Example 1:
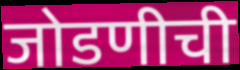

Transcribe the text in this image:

जोडणीची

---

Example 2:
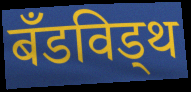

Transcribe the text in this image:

बँडविड्थ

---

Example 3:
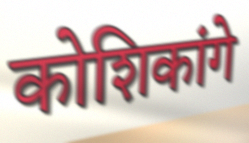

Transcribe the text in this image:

कोशिकांगे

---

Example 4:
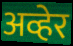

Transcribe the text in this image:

अव्हेर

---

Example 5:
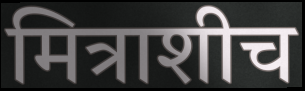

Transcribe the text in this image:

मित्राशीच